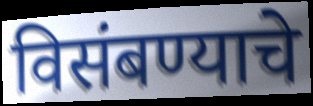
विसंबण्याचे